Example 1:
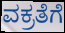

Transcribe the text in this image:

ವಕ್ರತೆಗೆ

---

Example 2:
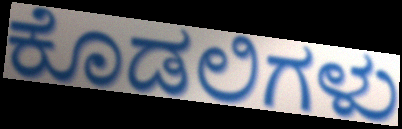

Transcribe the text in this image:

ಕೊಡಲಿಗಳು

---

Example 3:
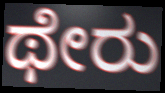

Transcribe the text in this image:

ಥೇರು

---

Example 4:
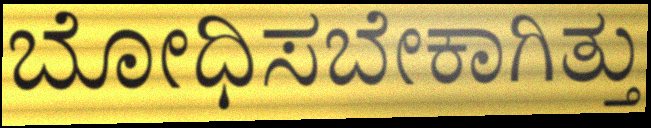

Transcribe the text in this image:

ಬೋಧಿಸಬೇಕಾಗಿತ್ತು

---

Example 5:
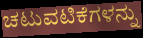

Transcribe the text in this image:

ಚಟುವಟಿಕೆಗಳನ್ನು